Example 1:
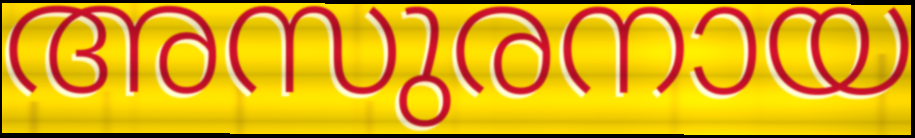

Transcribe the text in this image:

അസുരനായ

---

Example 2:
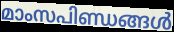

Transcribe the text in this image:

മാംസപിണ്ഡങ്ങൾ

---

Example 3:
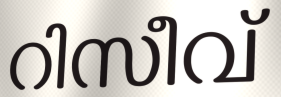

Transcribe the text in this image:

റിസീവ്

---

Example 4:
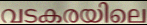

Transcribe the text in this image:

വടകരയിലെ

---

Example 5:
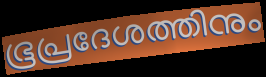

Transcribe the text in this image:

ഭൂപ്രദേശത്തിനും